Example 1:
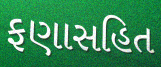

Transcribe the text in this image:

ફણાસહિત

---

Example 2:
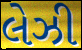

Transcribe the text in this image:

લેઝી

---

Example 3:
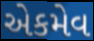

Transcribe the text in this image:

એકમેવ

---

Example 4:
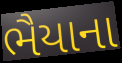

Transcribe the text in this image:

ભૈયાના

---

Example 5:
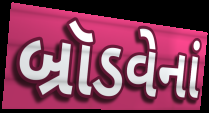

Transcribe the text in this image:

બ્રૉડવેનાં